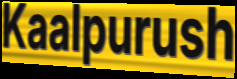
Kaalpurush